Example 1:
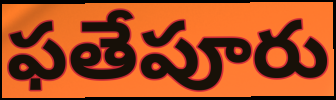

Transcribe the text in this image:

ఫతేపూరు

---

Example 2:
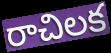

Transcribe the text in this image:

రాచిలక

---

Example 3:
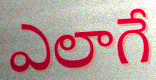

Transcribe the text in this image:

ఎలాగే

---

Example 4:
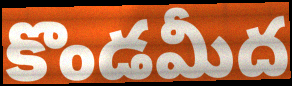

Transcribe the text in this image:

కొండమీద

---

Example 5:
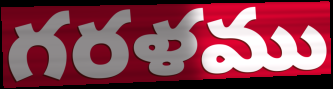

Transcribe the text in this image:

గరళము